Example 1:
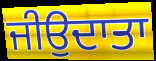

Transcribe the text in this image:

ਜੀਉਦਾਤਾ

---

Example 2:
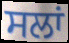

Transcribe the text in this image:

ਸਲਾਂ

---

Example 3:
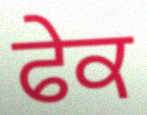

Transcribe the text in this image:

ਫੇਕ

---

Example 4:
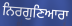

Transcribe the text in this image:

ਨਿਰਗੁਣਿਆਰਾ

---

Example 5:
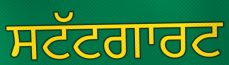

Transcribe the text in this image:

ਸਟੱਟਗਾਰਟ